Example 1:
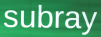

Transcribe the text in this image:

subray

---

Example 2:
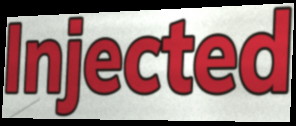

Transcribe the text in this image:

Injected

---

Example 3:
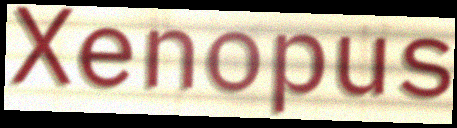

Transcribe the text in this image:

Xenopus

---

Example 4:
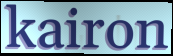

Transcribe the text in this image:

kairon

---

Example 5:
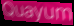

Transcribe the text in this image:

Quayum